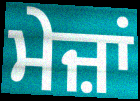
ਮੇਜ਼ਾਂ